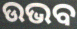
ଉଭବ